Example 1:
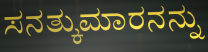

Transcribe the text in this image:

ಸನತ್ಕುಮಾರನನ್ನು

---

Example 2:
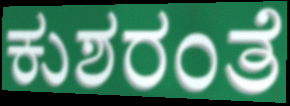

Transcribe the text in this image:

ಕುಶರಂತೆ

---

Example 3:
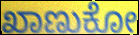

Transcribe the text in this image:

ಖಾಣುಕೋ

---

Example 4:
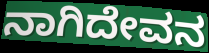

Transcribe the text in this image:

ನಾಗಿದೇವನ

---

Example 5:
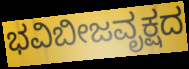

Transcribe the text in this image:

ಭವಿಬೀಜವೃಕ್ಷದ